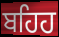
ਬਹਿਹ